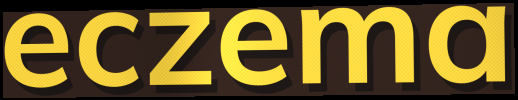
eczema